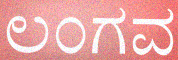
ಲಂಗವ